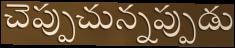
చెప్పుచున్నప్పుడు